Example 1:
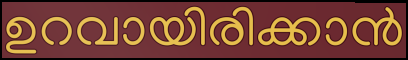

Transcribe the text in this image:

ഉറവായിരിക്കാൻ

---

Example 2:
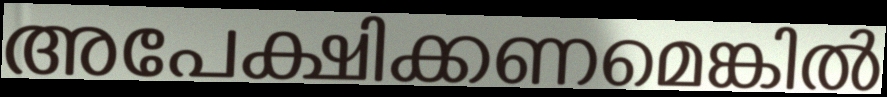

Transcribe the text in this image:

അപേക്ഷിക്കണമെങ്കിൽ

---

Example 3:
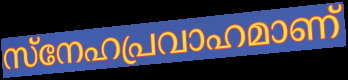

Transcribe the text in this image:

സ്നേഹപ്രവാഹമാണ്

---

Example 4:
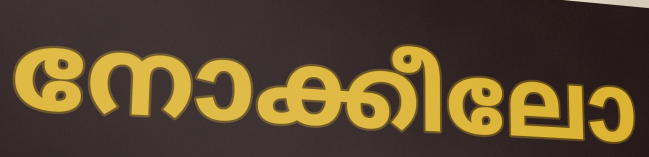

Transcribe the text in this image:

നോക്കീലോ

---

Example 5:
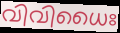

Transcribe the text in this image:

വിവിധൈഃ